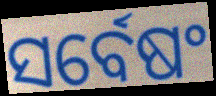
ସର୍ବେଷଂ